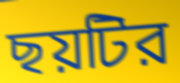
ছয়টির